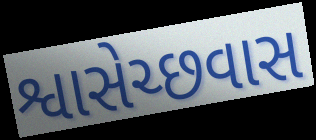
શ્વાસેચ્છવાસ